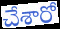
చేశారో